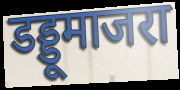
डड्डूमाजरा